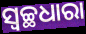
ସ୍ୱଚ୍ଛଧାରା